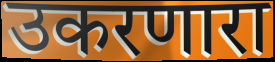
उकरणारा